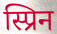
स्प्रिन